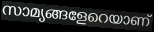
സാമ്യങ്ങളേറെയാണ്